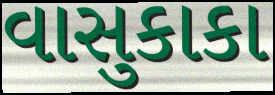
વાસુકાકા